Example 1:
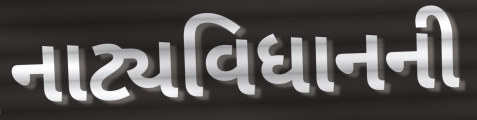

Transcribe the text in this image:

નાટ્યવિધાનની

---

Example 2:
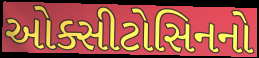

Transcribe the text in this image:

ઓક્સીટોસિનનો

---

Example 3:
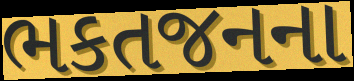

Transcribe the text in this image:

ભકતજનના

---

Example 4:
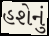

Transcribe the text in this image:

હશેનું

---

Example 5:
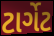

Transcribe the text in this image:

ટાર્ગેટ